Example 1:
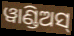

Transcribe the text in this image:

ୱାଣ୍ଡିଅସ୍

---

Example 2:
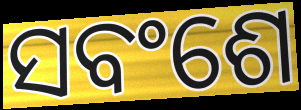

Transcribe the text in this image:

ସବଂଶେ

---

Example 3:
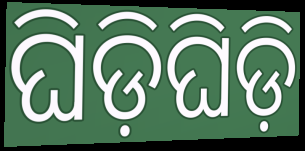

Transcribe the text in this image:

ଘିଡ଼ିଘିଡ଼ି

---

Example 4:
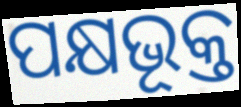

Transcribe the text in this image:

ପକ୍ଷଭୂକ୍ତ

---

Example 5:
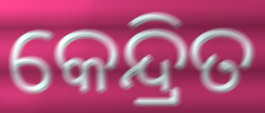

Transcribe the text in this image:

କେନ୍ଦ୍ରିତ